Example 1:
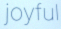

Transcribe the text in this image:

joyful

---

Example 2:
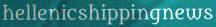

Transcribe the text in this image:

hellenicshippingnews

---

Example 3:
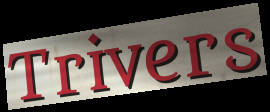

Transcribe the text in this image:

Trivers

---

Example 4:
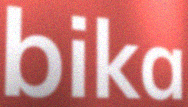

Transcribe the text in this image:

bika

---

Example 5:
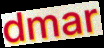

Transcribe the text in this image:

dmar